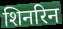
शिनरिन